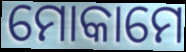
ମୋକାମେ